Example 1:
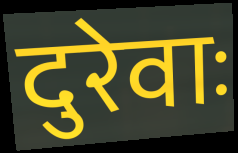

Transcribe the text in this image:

दुरेवाः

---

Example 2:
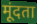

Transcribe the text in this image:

मूंदता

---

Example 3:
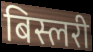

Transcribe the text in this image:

बिस्लरी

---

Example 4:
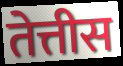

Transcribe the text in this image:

तेत्तीस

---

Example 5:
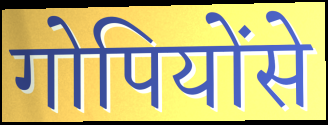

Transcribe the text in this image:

गोपियोंसे